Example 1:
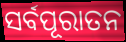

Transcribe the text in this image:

ସର୍ବପୂରାତନ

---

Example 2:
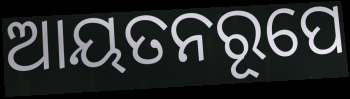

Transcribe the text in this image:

ଆୟତନରୂପେ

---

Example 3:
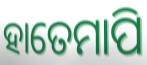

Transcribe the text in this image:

ହାତେମାପି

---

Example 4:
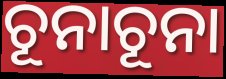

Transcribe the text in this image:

ଚୂନାଚୂନା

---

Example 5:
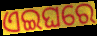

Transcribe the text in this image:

ଏଇଘରେ